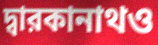
দ্বারকানাথও